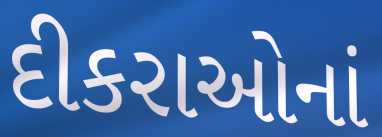
દીકરાઓનાં